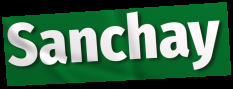
Sanchay